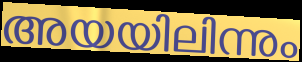
അയയിലിന്നും